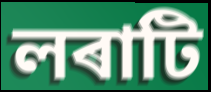
লৰাটি